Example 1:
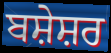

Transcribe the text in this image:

ਬਸ਼ੇਸ਼ਰ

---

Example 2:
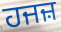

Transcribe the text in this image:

ਹਜਜ਼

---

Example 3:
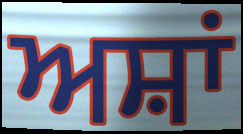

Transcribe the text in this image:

ਅਸ਼ਾਂ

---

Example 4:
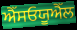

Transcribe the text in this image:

ਐੱਸਓਯੂਐੱਲ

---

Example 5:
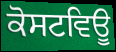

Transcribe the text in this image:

ਕੋਸਟਵਿਊ